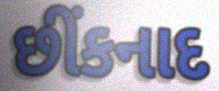
છીંકનાદ